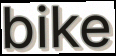
bike